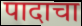
पादाचा